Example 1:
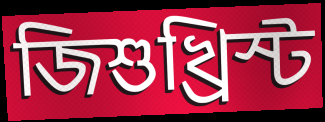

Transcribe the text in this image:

জিশুখ্রিস্ট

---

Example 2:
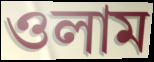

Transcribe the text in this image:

ওলাম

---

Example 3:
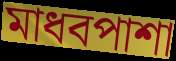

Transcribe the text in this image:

মাধবপাশা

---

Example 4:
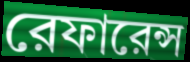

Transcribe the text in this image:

রেফারেন্স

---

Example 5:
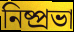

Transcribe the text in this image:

নিষ্প্রভা